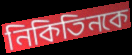
নিকিতিনকে